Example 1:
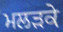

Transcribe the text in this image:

ਮਲੜਕੇ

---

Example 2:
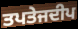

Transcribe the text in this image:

ਤਪਤੇਜਦੀਪ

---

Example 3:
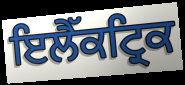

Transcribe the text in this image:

ਇਲੈੱਕਟ੍ਰਿਕ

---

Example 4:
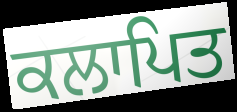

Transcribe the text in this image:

ਕਲਾਪਿਤ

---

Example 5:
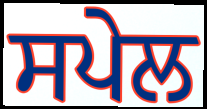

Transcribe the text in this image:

ਸਪੇਲ